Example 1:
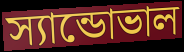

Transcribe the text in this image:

স্যান্ডোভাল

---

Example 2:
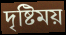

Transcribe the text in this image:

দৃষ্টিময়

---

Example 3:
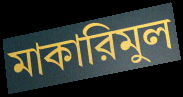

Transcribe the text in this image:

মাকারিমুল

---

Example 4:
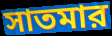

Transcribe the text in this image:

সাতমার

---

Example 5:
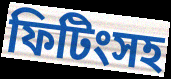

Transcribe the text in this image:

ফিটিংসহ